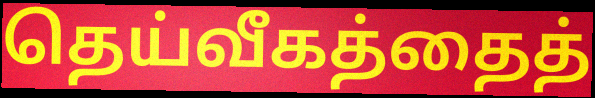
தெய்வீகத்தைத்